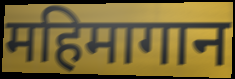
महिमागान